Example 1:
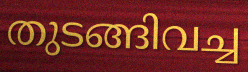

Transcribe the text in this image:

തുടങ്ങിവച്ച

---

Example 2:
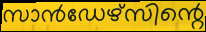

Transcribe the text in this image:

സാൻഡേഴ്സിന്റെ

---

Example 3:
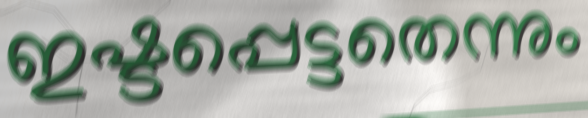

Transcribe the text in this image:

ഇഷ്ടപ്പെട്ടതെന്നും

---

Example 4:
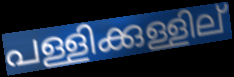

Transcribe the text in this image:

പള്ളിക്കുള്ളില്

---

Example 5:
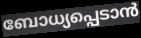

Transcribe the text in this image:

ബോധ്യപ്പെടാൻ